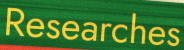
Researches